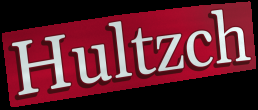
Hultzch